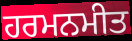
ਹਰਮਨਮੀਤ